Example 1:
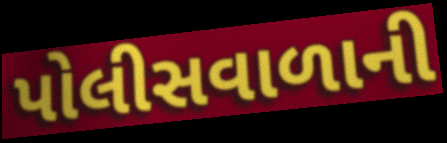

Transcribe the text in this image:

પોલીસવાળાની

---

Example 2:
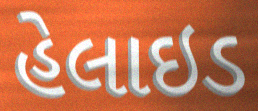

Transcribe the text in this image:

હેલાઇડ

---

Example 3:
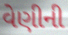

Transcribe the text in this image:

વેણીની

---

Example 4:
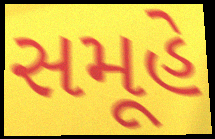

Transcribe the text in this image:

સમૂહે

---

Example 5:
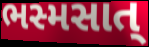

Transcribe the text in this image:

ભસ્મસાત્